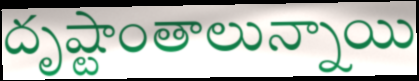
దృష్టాంతాలున్నాయి